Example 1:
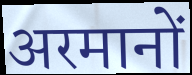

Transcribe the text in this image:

अरमानों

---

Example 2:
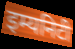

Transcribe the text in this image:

इम्यनिटी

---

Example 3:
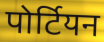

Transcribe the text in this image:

पोर्टियन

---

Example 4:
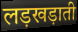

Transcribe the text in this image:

लड़खड़ाती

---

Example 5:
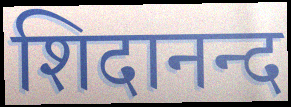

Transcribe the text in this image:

शिदानन्द